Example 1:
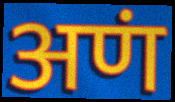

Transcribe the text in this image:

अणं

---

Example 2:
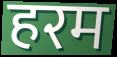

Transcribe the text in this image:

हरम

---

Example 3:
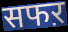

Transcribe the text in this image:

सफऱ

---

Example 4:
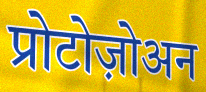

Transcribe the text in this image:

प्रोटोज़ोअन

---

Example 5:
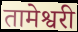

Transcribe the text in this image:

तामेश्वरी